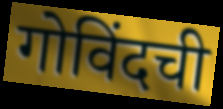
गोविंदची